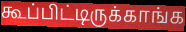
கூப்பிட்டிருக்காங்க